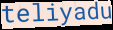
teliyadu